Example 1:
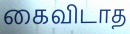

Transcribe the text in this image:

கைவிடாத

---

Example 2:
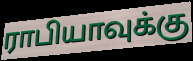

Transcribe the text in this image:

ராபியாவுக்கு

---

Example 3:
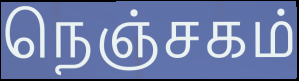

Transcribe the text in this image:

நெஞ்சகம்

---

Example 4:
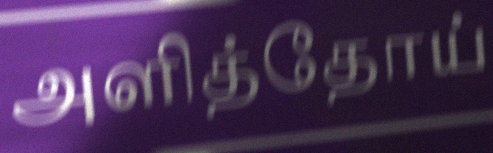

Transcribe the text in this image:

அளித்தோய்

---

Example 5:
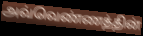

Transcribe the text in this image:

அவ்வெண்ணத்தின்